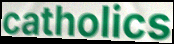
catholics